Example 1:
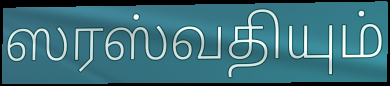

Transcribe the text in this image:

ஸரஸ்வதியும்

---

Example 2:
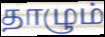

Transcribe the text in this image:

தாழும்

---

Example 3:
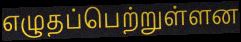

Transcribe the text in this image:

எழுதப்பெற்றுள்ளன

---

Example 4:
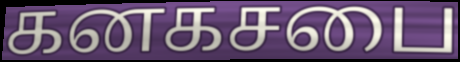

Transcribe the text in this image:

கனகசபை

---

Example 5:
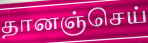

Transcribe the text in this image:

தானஞ்செய்